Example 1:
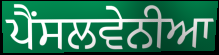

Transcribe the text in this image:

ਪੈਂਸਲਵੇਨੀਆ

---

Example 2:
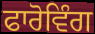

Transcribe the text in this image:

ਫਾਰੋਵਿੰਗ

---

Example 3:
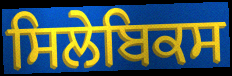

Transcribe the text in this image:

ਸਿਲੇਬਿਕਸ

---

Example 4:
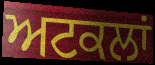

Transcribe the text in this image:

ਅਟਕਲਾਂ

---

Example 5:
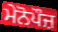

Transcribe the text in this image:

ਮੇਨੋਪੌਜ਼